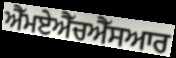
ਐੱਮਏਐੱਚਐੱਸਆਰ